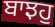
ਬਾਝਹੁ